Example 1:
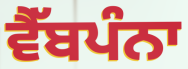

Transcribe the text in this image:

ਵੈੱਬਪੰਨਾ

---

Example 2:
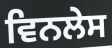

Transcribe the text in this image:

ਵਿਨਲੇਸ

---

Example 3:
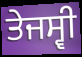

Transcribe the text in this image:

ਤੇਜਸ੍ਵੀ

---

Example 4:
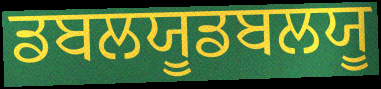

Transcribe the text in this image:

ਡਬਲਯੂਡਬਲਯੂ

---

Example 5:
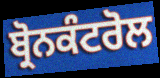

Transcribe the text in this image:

ਬ੍ਰੋਨਕੰਟਰੋਲ